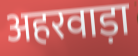
अहरवाड़ा